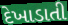
દેખાડાતી